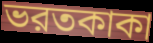
ভরতকাকা